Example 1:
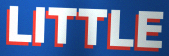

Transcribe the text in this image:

LITTLE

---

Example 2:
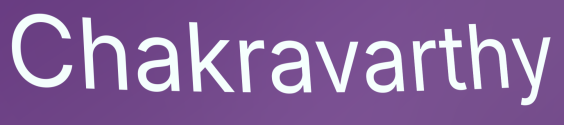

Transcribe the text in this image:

Chakravarthy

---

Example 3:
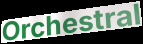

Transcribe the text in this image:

Orchestral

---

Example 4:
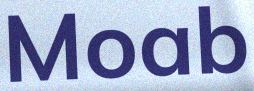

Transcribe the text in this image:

Moab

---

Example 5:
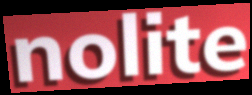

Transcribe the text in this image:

nolite